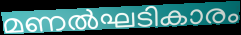
മണൽഘടികാരം